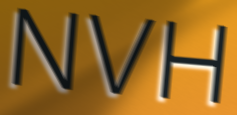
NVH